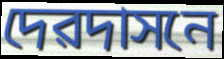
দেৱদাসনে